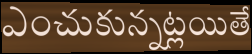
ఎంచుకున్నట్లయితే